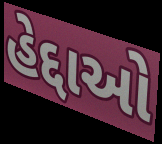
હેદ્દાઓ